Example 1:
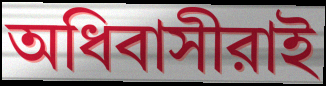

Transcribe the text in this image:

অধিবাসীরাই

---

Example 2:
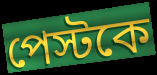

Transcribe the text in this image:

পেস্টকে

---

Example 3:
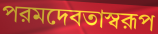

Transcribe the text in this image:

পরমদেবতাস্বরূপ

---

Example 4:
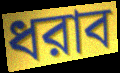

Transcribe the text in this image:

ধরাব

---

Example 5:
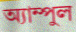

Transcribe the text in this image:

অ্যাম্পুল